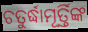
ଚତୁର୍ଦ୍ଧାମୂର୍ତ୍ତିଙ୍କ